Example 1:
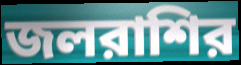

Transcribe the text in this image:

জলরাশির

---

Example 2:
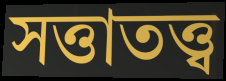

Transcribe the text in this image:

সত্তাতত্ত্ব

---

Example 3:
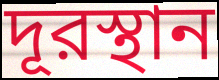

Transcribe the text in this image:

দূরস্থান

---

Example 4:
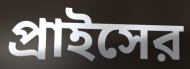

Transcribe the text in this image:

প্রাইসের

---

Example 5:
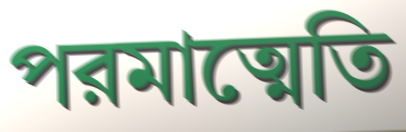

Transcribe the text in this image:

পরমাত্মেতি